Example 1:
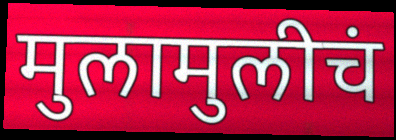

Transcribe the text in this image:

मुलामुलीचं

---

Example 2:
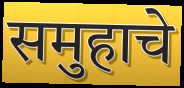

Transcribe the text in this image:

समुहाचे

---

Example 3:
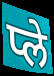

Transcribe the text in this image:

प्ले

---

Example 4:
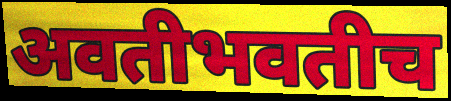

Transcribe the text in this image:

अवतीभवतीच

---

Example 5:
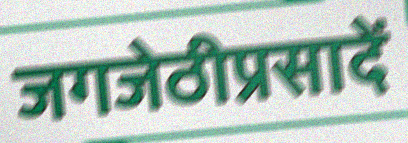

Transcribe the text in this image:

जगजेठीप्रसादें